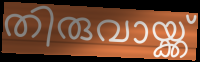
തിരുവായ്ക്ക്